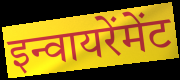
इन्वायरेंमेंट